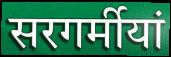
सरगर्मीयां